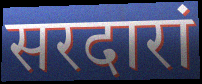
सरदारां